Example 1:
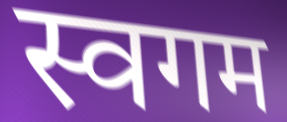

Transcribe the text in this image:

स्वगम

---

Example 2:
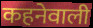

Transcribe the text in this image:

कहनेवाली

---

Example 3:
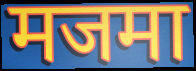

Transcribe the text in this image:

मजमा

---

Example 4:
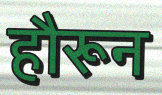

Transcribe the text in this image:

हौरून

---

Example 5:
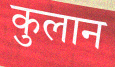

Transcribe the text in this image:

कुलान